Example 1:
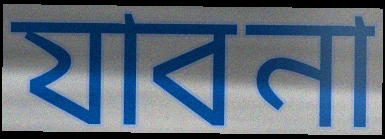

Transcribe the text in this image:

যাবনা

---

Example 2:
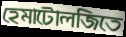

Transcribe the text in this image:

হেমাটোলজিতে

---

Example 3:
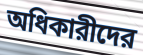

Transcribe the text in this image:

অধিকারীদের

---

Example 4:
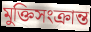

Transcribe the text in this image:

মুক্তিসংক্রান্ত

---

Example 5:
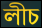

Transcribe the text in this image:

লীচ